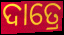
ଦାତ୍ରେ